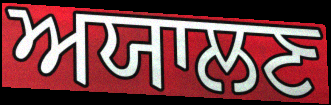
ਅਯਾਲਣ